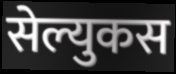
सेल्युकस